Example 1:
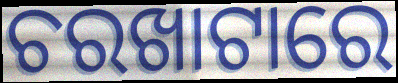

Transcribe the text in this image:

ଚରଖାଟାରେ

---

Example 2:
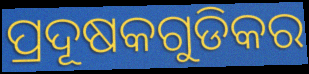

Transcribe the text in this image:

ପ୍ରଦୂଷକଗୁଡିକର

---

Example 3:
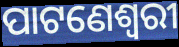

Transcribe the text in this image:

ପାଟଣେଶ୍ୱରୀ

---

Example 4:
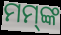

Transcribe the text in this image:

ମମ୍‌ଙ୍କ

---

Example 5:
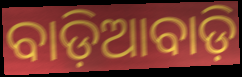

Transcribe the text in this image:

ବାଡ଼ିଆବାଡ଼ି